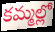
కమ్మల్లో